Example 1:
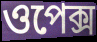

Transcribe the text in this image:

ওপেক্স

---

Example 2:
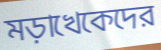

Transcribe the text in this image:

মড়াখেকেদের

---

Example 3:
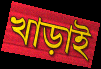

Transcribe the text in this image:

খাড়াই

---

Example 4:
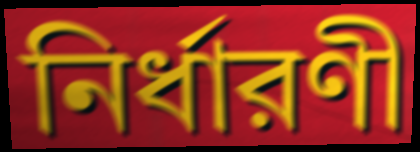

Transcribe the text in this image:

নির্ধারণী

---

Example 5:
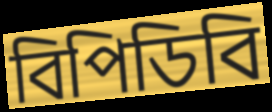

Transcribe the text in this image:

বিপিডিবি